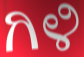
ಗಿಳಿ